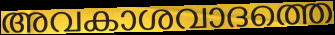
അവകാശവാദത്തെ